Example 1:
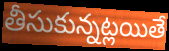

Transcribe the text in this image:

తీసుకున్నట్లయితే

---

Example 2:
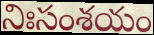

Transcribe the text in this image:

నిఃసంశయం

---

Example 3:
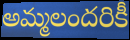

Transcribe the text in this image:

అమ్మలందరికీ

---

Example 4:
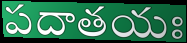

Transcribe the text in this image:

పదాతయః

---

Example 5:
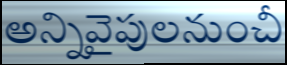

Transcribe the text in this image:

అన్నివైపులనుంచీ